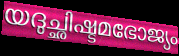
യദുച്ഛിഷ്ടമഭോജ്യം